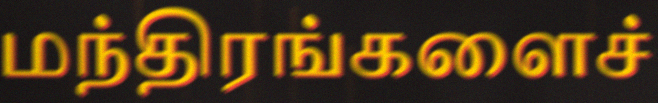
மந்திரங்களைச்